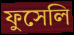
ফুসেলি